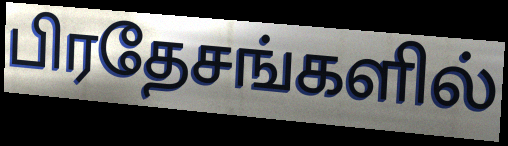
பிரதேசங்களில்